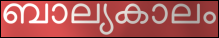
ബാല്യകാലം